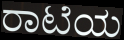
ರಾಟೆಯ